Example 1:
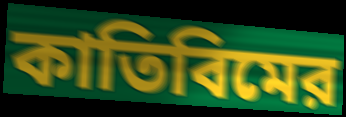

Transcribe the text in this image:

কাতিবিমের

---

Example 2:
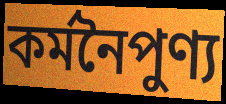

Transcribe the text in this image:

কর্মনৈপুণ্য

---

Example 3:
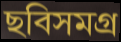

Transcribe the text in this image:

ছবিসমগ্র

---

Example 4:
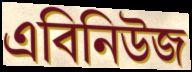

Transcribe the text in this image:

এবিনিউজ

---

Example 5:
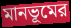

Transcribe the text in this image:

মানভূমের